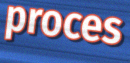
proces